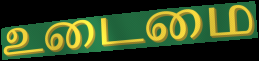
உடைமை